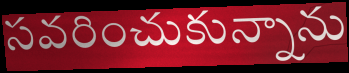
సవరించుకున్నాను